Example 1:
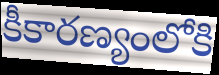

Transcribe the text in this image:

కీకారణ్యంలోకి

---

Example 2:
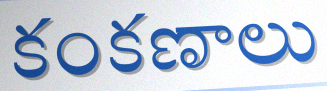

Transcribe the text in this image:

కంకణాలు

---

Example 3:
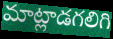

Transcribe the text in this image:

మాట్లాడగలిగి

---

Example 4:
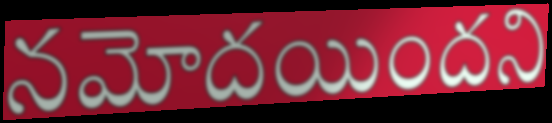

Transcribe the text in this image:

నమోదయిందని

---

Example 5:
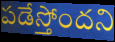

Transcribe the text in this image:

పడేస్తోందని